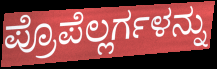
ಪ್ರೊಪೆಲ್ಲರ್ಗಳನ್ನು